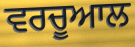
ਵਰਚੂਆਲ